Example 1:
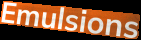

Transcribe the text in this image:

Emulsions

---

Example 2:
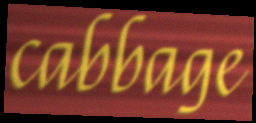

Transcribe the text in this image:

cabbage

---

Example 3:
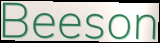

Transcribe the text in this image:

Beeson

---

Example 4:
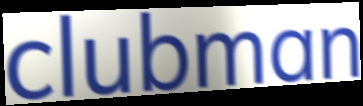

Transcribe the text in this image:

clubman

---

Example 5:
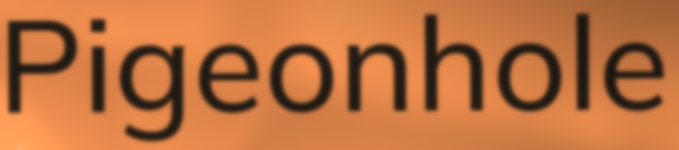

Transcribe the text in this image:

Pigeonhole